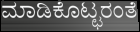
ಮಾಡಿಕೊಟ್ಟರಂತೆ